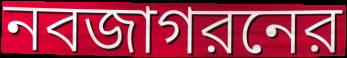
নবজাগরনের